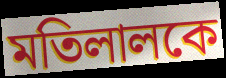
মতিলালকে